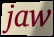
jaw